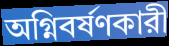
অগ্নিবর্ষণকারী